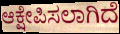
ಆಕ್ಷೇಪಿಸಲಾಗಿದೆ